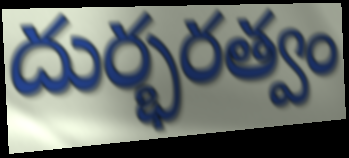
దుర్భరత్వం